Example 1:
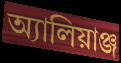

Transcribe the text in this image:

অ্যালিয়াঞ্জ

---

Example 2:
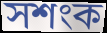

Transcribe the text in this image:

সশংক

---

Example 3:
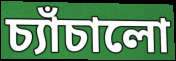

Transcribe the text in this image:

চ্যাঁচালো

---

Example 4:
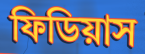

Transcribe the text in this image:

ফিডিয়াস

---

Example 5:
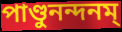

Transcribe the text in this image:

পাণ্ডুনন্দনম্